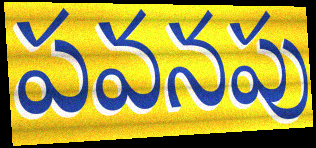
పవనపు